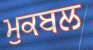
ਮੁਕਬਲ